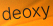
deoxy